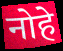
नोहे